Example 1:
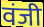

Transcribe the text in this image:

वंजी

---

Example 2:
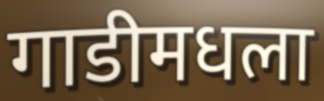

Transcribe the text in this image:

गाडीमधला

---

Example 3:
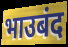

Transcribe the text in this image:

भाउबंद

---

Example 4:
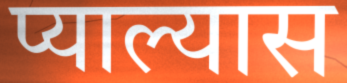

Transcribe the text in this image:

प्याल्यास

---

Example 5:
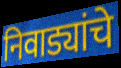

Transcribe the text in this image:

निवाड्यांचे